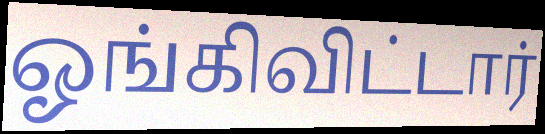
ஓங்கிவிட்டார்